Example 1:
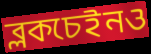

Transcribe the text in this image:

ব্লকচেইনও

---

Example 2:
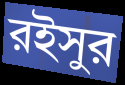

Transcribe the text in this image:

রইসুর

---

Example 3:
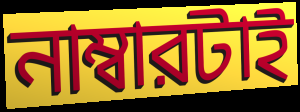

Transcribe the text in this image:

নাম্বারটাই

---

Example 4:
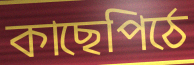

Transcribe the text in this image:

কাছেপিঠে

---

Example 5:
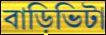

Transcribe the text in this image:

বাড়িভিটা